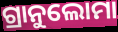
ଗ୍ରାନୁଲୋମା